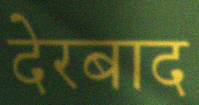
देरबाद